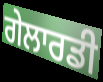
ਗੇਲਾਰਡੀ